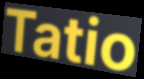
Tatio